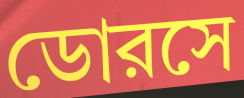
ডোরসে